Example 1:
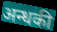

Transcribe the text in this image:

अन्धकी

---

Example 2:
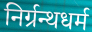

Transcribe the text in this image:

निर्ग्रन्थधर्म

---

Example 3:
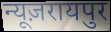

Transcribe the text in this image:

न्यूज़रायपुर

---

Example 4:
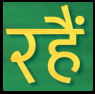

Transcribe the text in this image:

रहैं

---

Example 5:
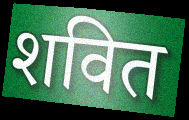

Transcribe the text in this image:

शवित